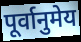
पूर्वानुमेय